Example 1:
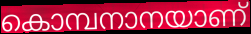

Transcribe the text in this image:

കൊമ്പനാനയാണ്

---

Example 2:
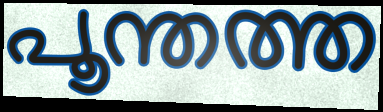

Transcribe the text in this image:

പൂന്തത്ത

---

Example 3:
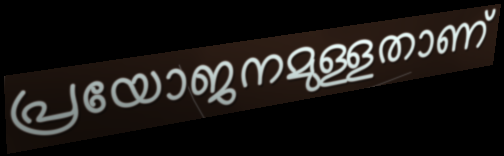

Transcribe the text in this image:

പ്രയോജനമുള്ളതാണ്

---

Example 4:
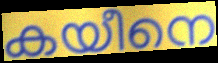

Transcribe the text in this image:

കയീനെ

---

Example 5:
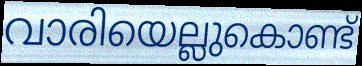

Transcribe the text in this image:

വാരിയെല്ലുകൊണ്ട്